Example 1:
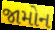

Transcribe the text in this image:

જામોન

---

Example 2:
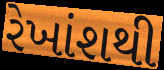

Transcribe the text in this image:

રેખાંશથી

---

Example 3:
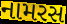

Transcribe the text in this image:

નામરસ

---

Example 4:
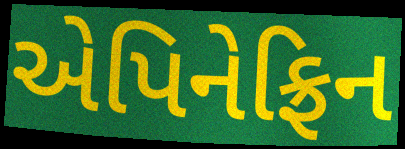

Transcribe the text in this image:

એપિનેફ્રિન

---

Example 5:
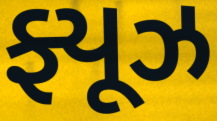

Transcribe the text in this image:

ફ્યૂઝ